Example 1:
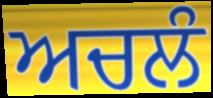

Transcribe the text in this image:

ਅਚਲੰ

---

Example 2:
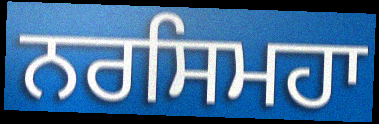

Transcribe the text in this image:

ਨਰਸਿਮਹਾ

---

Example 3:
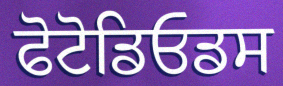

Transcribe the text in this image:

ਫੋਟੋਡਿਓਡਸ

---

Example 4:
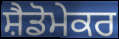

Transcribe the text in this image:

ਸ਼ੈਡੋਮੇਕਰ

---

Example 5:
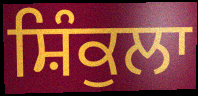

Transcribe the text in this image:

ਸ਼ਿੰਕੁਲਾ